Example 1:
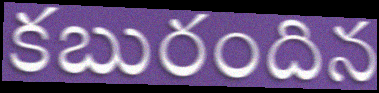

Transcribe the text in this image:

కబురందిన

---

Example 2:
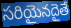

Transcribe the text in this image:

సరియైనదైతే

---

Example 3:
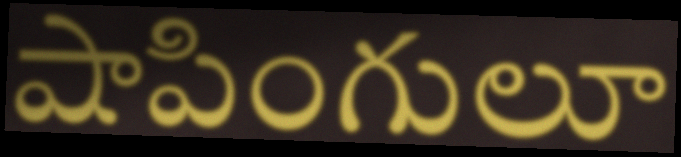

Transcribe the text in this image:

షాపింగులూ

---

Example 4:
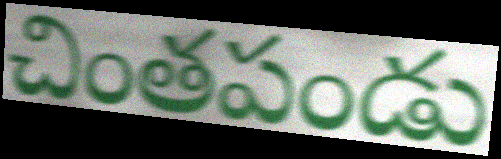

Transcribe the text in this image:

చింతపండు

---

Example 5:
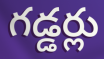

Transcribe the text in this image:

గడ్డర్లు